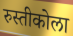
रुस्तीकोला